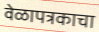
वेळापत्रकाचा